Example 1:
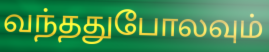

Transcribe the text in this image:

வந்ததுபோலவும்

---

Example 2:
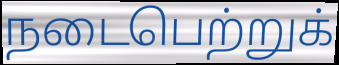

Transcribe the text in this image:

நடைபெற்றுக்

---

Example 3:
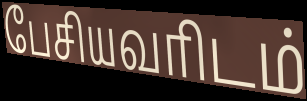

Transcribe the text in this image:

பேசியவரிடம்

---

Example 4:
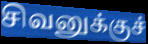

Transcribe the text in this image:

சிவனுக்குச்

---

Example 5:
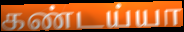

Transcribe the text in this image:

கண்டய்யா